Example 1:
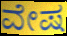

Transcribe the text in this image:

ವೇಷ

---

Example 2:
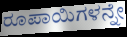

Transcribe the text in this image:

ರೂಪಾಯಿಗಳನ್ನೇ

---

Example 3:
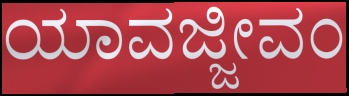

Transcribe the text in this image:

ಯಾವಜ್ಜೀವಂ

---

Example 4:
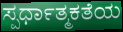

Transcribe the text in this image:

ಸ್ಪರ್ಧಾತ್ಮಕತೆಯ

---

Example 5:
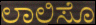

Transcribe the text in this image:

ಲಾಲಿಸೊ